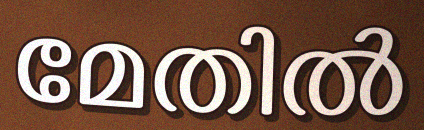
മേതിൽ